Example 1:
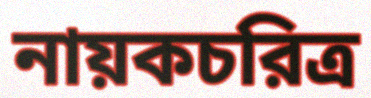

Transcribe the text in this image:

নায়কচরিত্র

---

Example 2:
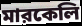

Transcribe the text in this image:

মারকেলি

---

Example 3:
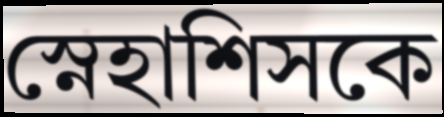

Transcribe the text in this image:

স্নেহাশিসকে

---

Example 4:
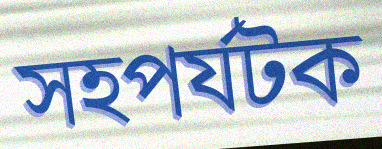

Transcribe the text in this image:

সহপর্যটক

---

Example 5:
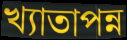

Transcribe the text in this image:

খ্যাতাপন্ন